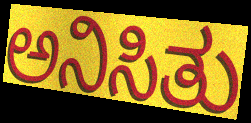
ಅನಿಸಿತು